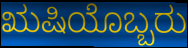
ಋಷಿಯೊಬ್ಬರು